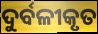
ଦୁର୍ବଳୀକୃତ